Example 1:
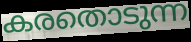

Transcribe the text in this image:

കരതൊടുന്ന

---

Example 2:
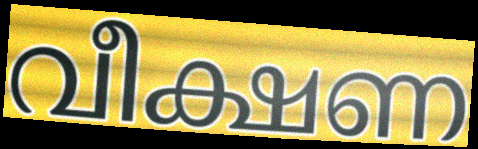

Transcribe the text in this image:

വീക്ഷണ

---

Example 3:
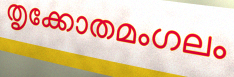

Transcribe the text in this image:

തൃക്കോതമംഗലം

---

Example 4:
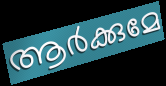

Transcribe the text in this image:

ആർക്കുമേ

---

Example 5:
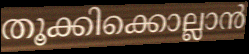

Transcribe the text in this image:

തൂക്കിക്കൊല്ലാൻ